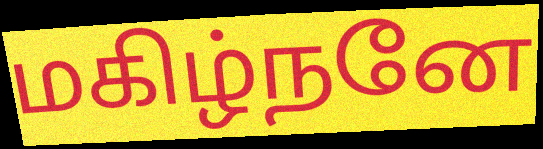
மகிழ்நனே